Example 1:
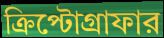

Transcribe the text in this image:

ক্রিপ্টোগ্রাফার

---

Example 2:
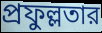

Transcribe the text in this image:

প্রফুল্লতার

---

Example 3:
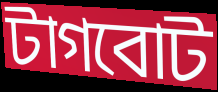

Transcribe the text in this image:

টাগবোট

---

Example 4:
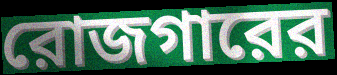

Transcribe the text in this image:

রোজগারের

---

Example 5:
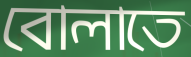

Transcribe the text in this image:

বোলাতে